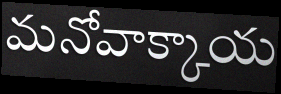
మనోవాక్కాయ